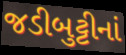
જડીબુટ્ટીનાં